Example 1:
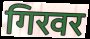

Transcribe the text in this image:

गिरवर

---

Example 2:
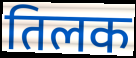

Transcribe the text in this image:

तिलक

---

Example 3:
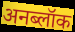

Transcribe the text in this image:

अनब्लॉक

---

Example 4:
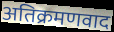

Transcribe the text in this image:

अतिक्रमणवाद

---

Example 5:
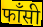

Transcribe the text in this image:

फाँसी